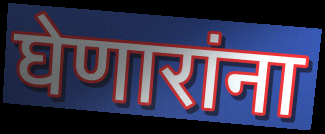
घेणारांना